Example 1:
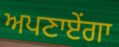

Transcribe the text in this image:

ਅਪਣਾਏਂਗਾ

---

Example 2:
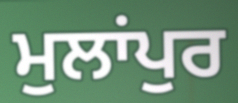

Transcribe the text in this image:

ਮੁਲਾਂਪੁਰ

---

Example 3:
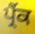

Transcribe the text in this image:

ਪ੍ਰੈਂਕ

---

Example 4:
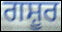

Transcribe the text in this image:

ਗਸ਼ੂਰ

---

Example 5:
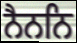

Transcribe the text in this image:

ਨੈਨਨਿ